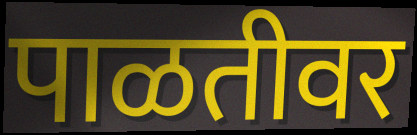
पाळतीवर